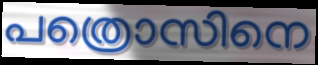
പത്രൊസിനെ